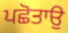
ਪਛੋਤਾਉ